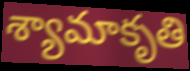
శ్యామాకృతి